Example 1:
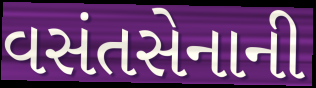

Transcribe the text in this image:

વસંતસેનાની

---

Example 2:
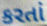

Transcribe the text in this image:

કરતાં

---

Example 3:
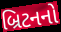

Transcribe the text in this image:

બ્રિટનનો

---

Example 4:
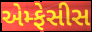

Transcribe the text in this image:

એમ્ફેસીસ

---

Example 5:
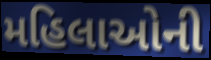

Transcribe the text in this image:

મહિલાઓની